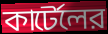
কার্টেলের